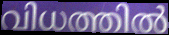
വിധത്തിൽ